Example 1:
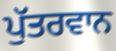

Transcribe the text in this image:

ਪੁੱਤਰਵਾਨ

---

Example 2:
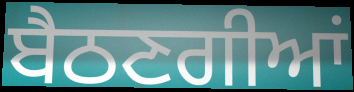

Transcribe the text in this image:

ਬੈਠਣਗੀਆਂ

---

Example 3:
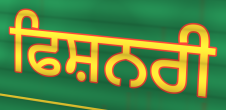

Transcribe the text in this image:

ਫਿਸ਼ਨਰੀ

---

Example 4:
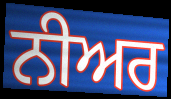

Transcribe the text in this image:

ਨੀਅਰ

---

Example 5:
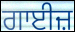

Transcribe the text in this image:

ਗਾਈਜ਼